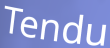
Tendu